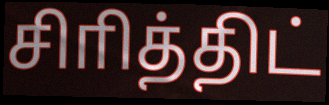
சிரித்திட்